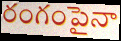
రంగంపైనా